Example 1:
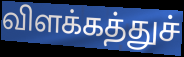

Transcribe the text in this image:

விளக்கத்துச்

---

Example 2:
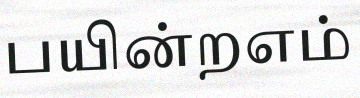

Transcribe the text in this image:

பயின்றஎம்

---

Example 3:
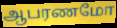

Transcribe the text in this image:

ஆபரணமோ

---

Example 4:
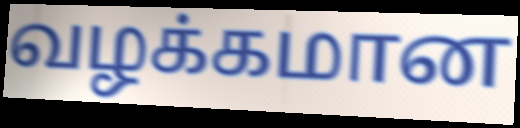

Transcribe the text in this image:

வழக்கமான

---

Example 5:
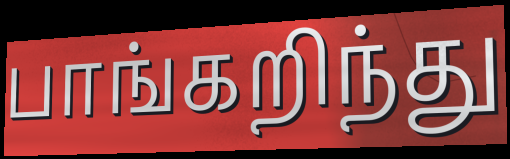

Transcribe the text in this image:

பாங்கறிந்து